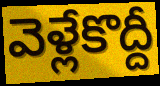
వెళ్లేకొద్దీ